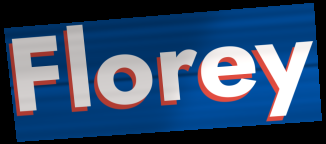
Florey